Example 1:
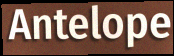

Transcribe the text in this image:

Antelope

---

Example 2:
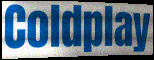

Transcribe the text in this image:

Coldplay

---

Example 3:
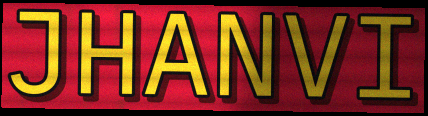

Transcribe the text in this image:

JHANVI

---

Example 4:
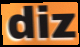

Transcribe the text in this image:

diz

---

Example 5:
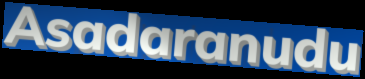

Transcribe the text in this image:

Asadaranudu